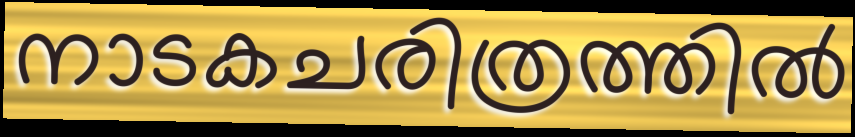
നാടകചരിത്രത്തിൽ